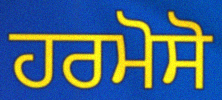
ਹਰਮੋਸੋ